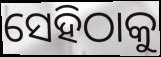
ସେହିଠାକୁ